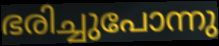
ഭരിച്ചുപോന്നു